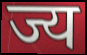
ज्य